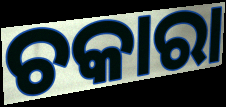
ଚକାରା